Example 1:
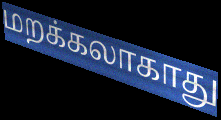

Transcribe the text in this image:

மறக்கலாகாது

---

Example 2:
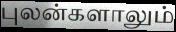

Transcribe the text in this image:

புலன்களாலும்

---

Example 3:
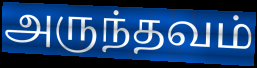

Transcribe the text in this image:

அருந்தவம்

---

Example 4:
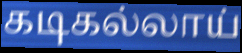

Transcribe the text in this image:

கடிகல்லாய்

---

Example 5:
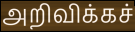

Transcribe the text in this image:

அறிவிக்கச்